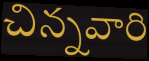
చిన్నవారి